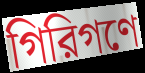
গিরিগণে